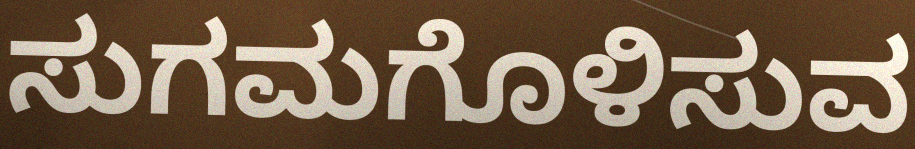
ಸುಗಮಗೊಳಿಸುವ